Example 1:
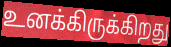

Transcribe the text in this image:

உனக்கிருக்கிறது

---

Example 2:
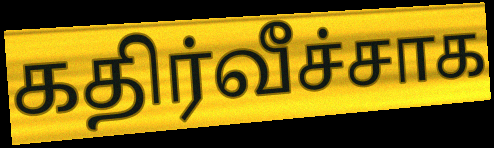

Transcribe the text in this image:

கதிர்வீச்சாக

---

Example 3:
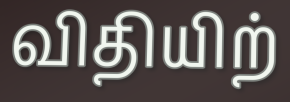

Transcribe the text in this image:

விதியிற்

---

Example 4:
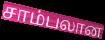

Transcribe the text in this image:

சாம்பலான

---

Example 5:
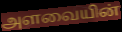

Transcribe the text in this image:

அளவையின்